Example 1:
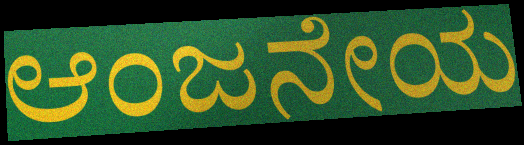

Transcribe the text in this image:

ಆಂಜನೇಯ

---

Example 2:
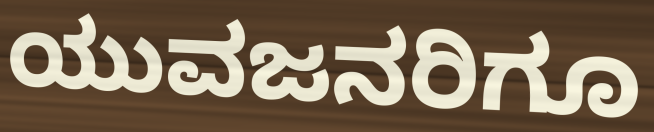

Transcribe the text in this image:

ಯುವಜನರಿಗೂ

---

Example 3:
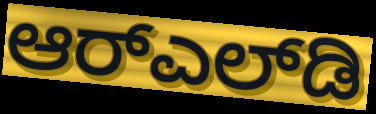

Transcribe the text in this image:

ಆರ್‌ಎಲ್‌ಡಿ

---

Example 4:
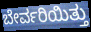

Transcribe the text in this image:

ಬೇರ್ವರಿಯಿತ್ತು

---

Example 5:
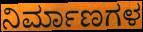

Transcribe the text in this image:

ನಿರ್ಮಾಣಗಳ